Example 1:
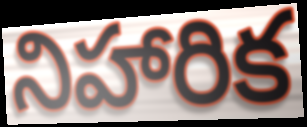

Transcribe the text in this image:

నిహారిక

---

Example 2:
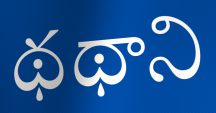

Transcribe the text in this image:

థథాని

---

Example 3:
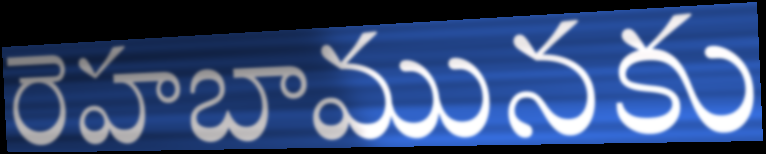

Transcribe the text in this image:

రెహబామునకు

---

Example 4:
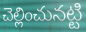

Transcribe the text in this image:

చెల్లించునట్టి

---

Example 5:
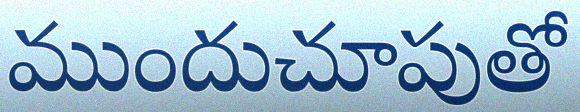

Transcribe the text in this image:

ముందుచూపుతో